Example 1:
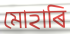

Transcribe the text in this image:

মোহাৰি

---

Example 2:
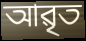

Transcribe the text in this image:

আৱৃত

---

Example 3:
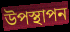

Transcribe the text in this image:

উপস্থাপন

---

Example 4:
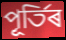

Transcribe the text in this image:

পূৰ্তিৰ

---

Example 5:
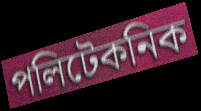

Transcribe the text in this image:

পলিটেকনিক